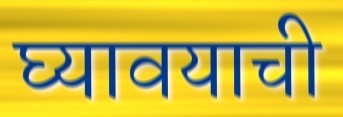
घ्यावयाची